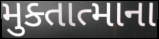
મુક્તાત્માના